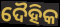
ଦୈହିକ